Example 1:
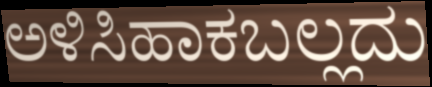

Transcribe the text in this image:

ಅಳಿಸಿಹಾಕಬಲ್ಲದು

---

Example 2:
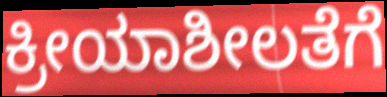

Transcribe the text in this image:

ಕ್ರೀಯಾಶೀಲತೆಗೆ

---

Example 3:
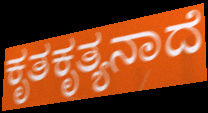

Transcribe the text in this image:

ಕೃತಕೃತ್ಯನಾದೆ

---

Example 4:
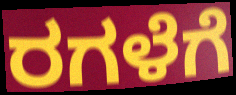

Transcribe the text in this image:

ರಗಳೆಗೆ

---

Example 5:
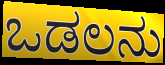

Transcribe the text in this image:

ಒಡಲನು